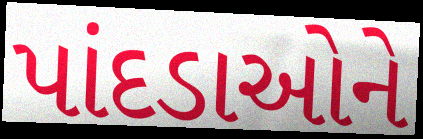
પાંદડાઓને